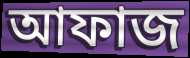
আফাজ